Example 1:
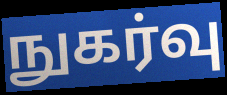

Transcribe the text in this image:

நுகர்வு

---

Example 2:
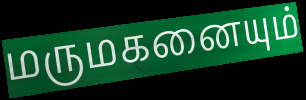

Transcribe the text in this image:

மருமகனையும்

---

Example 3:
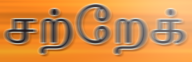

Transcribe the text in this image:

சற்றேக்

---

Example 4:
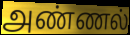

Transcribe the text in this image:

அண்ணல்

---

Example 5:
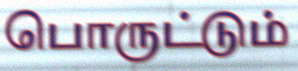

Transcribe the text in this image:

பொருட்டும்